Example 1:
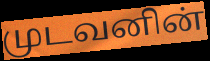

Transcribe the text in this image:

முடவனின்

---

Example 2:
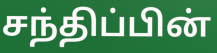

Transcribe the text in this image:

சந்திப்பின்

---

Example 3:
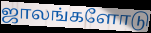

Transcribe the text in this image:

ஜாலங்களோடு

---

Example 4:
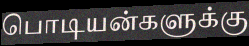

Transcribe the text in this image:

பொடியன்களுக்கு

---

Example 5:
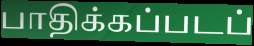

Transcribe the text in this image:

பாதிக்கப்படப்